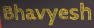
Bhavyesh